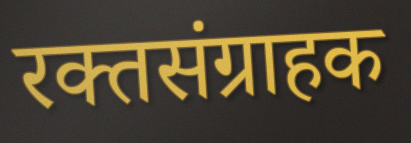
रक्तसंग्राहक